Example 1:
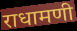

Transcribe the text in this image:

राधामणी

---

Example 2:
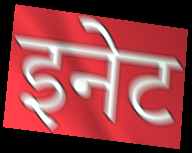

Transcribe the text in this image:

इनेट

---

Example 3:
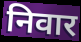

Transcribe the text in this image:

निवार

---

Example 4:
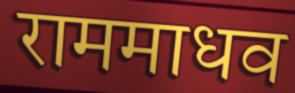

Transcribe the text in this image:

राममाधव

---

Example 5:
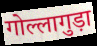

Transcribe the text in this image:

गोल्लागुड़ा